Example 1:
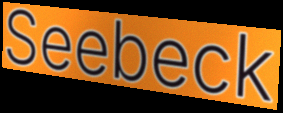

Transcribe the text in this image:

Seebeck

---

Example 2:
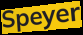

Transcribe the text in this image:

Speyer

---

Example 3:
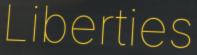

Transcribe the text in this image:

Liberties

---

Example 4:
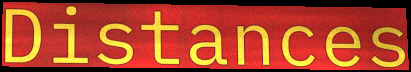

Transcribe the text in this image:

Distances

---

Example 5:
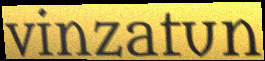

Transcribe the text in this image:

vinzatun